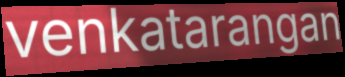
venkatarangan